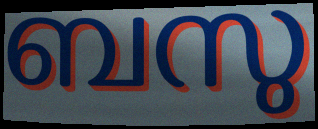
ബസു